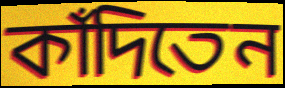
কাঁদিতেন